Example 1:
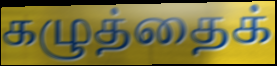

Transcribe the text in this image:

கழுத்தைக்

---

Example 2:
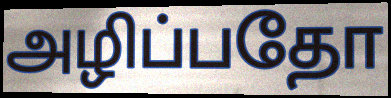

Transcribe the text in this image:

அழிப்பதோ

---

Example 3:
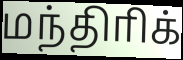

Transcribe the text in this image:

மந்திரிக்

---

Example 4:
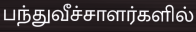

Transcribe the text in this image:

பந்துவீச்சாளர்களில்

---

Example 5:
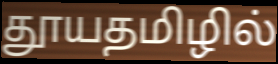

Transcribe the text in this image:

தூயதமிழில்